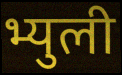
भ्युली